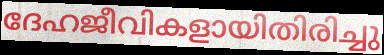
ദേഹജീവികളായിതിരിച്ചു